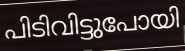
പിടിവിട്ടുപോയി